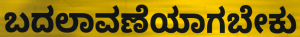
ಬದಲಾವಣೆಯಾಗಬೇಕು